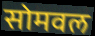
सोमवल